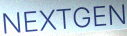
NEXTGEN